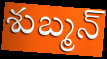
శుబ్మన్